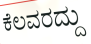
ಕೆಲವರದ್ದು